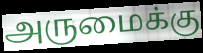
அருமைக்கு